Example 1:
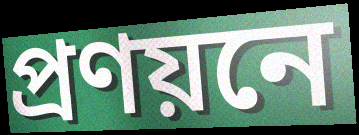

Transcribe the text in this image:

প্ৰণয়নে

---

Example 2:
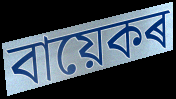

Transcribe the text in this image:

বায়েকৰ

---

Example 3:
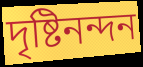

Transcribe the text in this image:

দৃষ্টিনন্দন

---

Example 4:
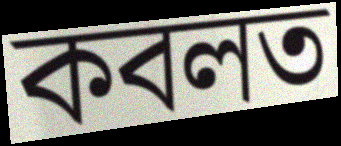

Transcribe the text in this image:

কবলত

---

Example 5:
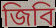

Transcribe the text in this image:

জিবি